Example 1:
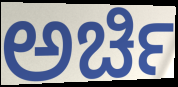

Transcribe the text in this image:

ಅರ್ಚಿ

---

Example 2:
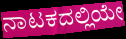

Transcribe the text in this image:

ನಾಟಕದಲ್ಲಿಯೇ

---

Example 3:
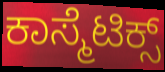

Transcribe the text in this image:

ಕಾಸ್ಮೆಟಿಕ್ಸ್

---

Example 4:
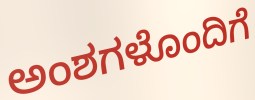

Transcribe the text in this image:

ಅಂಶಗಳೊಂದಿಗೆ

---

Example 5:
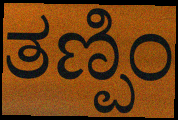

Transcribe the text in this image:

ತಣ್ಪಿಂ